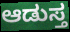
ಆಡುಸ್ತ